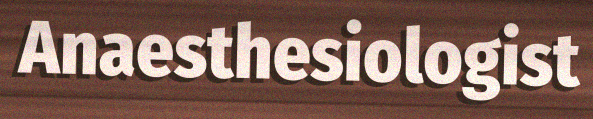
Anaesthesiologist